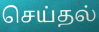
செய்தல்